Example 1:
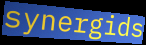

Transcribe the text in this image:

synergids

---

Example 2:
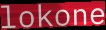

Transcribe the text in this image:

lokone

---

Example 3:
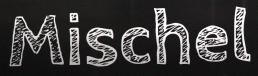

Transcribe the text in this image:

Mischel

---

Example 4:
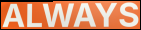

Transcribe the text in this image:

ALWAYS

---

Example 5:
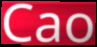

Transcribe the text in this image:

Cao